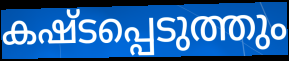
കഷ്ടപ്പെടുത്തും